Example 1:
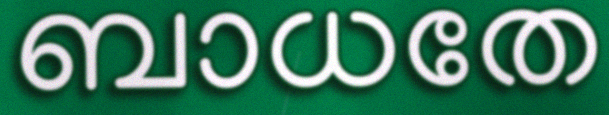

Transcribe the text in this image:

ബാധതേ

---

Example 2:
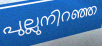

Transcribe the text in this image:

പുല്ലുനിറഞ്ഞ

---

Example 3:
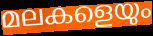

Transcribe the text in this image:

മലകളെയും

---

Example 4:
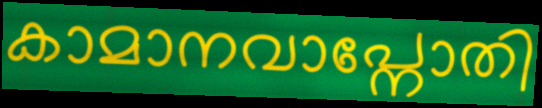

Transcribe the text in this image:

കാമാനവാപ്നോതി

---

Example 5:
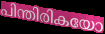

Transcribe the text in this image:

പിന്തിരികയോ